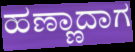
ಹಣ್ಣಾದಾಗ